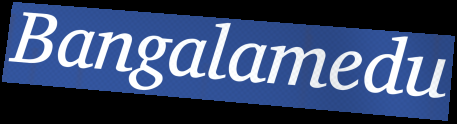
Bangalamedu